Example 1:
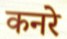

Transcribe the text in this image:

कनरे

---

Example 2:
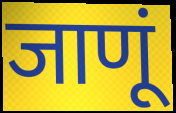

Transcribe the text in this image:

जाणूं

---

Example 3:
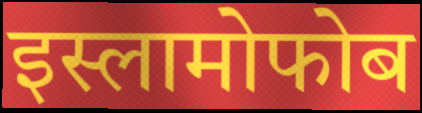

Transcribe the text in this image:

इस्लामोफोब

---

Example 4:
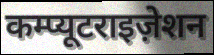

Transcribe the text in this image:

कम्प्यूटराइज़ेशन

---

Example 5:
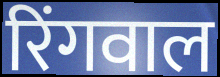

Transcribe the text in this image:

रिंगवाल